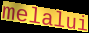
melalui